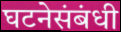
घटनेसंबंधी